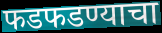
फडफडण्याचा